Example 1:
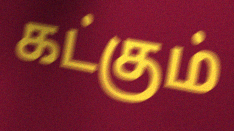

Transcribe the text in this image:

கட்கும்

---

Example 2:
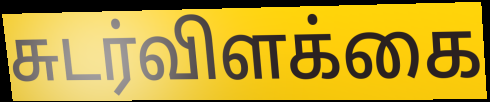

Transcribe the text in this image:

சுடர்விளக்கை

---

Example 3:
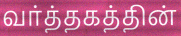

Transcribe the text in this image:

வர்த்தகத்தின்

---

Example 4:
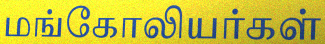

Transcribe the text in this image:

மங்கோலியர்கள்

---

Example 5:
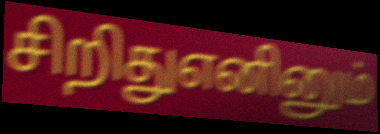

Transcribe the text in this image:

சிறிதுஎனினும்